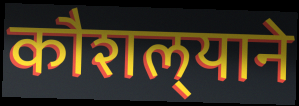
कौशल्याने